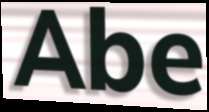
Abe